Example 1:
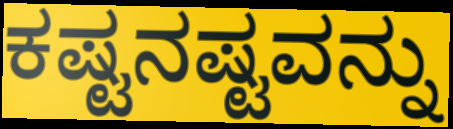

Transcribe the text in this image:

ಕಷ್ಟನಷ್ಟವನ್ನು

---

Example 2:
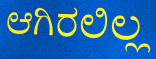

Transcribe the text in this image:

ಆಗಿರಲಿಲ್ಲ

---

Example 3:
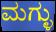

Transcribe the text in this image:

ಮಗ್ಳು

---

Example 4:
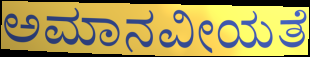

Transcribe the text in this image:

ಅಮಾನವೀಯತೆ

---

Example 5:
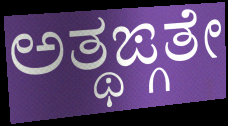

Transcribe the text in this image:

ಅತ್ಥಙ್ಗತೇ